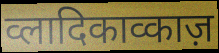
व्लादिकाव्काज़